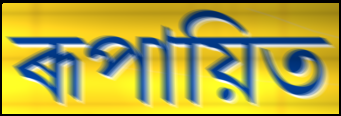
ৰূপায়িত